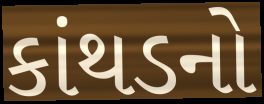
કાંથડનો